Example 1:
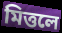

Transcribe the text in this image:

মিত্তলে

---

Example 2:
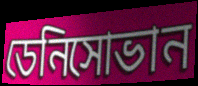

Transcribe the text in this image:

ডেনিসোভান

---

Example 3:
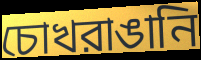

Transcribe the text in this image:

চোখরাঙানি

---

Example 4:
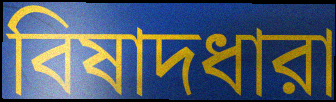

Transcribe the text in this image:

বিষাদধারা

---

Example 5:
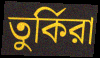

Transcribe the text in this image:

তুর্কিরা